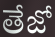
తేజో